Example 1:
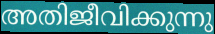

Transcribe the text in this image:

അതിജീവിക്കുന്നു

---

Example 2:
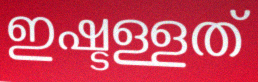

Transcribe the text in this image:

ഇഷ്ടള്ളത്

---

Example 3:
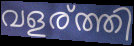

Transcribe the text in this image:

വളര്ത്തി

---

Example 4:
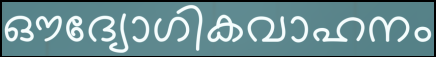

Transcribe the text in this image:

ഔദ്യോഗികവാഹനം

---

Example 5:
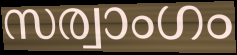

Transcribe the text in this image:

സര്വാംഗം